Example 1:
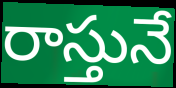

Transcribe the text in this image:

రాస్తునే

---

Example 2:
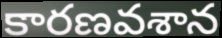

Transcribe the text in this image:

కారణవశాన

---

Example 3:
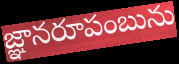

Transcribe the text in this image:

జ్ఞానరూపంబును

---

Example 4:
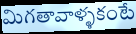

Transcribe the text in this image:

మిగతావాళ్ళకంటే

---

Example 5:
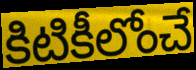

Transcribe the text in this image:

కిటికీలోంచే